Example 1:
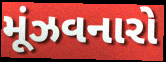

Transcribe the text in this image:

મૂંઝવનારો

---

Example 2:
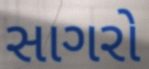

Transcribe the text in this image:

સાગરો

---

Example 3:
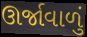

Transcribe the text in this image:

ઊર્જાવાળું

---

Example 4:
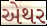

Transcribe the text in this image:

એથર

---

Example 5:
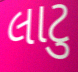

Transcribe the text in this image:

લાટુ